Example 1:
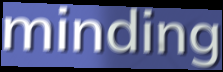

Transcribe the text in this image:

minding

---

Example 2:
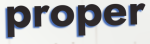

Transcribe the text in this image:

proper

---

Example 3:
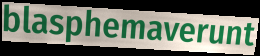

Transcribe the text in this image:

blasphemaverunt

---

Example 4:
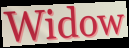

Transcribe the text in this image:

Widow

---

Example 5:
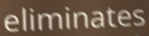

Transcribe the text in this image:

eliminates